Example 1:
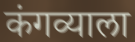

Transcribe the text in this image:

कंगव्याला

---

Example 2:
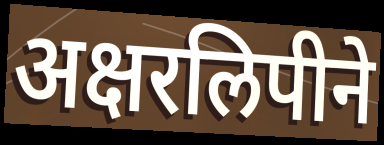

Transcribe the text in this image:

अक्षरलिपीने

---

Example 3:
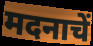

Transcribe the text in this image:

मदनाचें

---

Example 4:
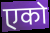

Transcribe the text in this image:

एको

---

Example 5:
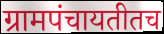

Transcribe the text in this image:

ग्रामपंचायतीतच